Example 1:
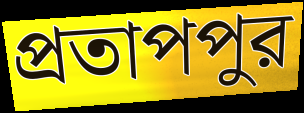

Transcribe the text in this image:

প্রতাপপুর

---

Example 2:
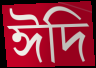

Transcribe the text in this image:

ঈদি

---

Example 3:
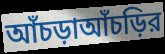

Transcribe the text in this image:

আঁচড়াআঁচড়ির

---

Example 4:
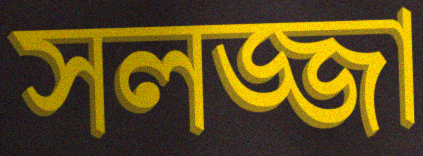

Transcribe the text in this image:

সলজ্জা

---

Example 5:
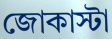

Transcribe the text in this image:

জোকাস্টা